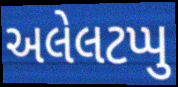
અલેલટપ્પુ